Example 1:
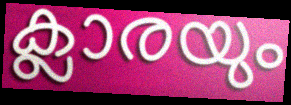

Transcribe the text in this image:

ക്ലാരയും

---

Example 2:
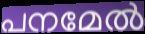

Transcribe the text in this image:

പനമേൽ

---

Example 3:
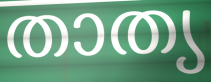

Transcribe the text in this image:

താത്യ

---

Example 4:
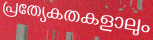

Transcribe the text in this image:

പ്രത്യേകതകളാലും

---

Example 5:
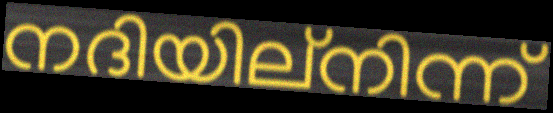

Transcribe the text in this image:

നദിയില്നിന്ന്